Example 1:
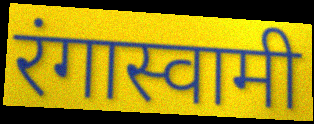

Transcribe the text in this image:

रंगास्वामी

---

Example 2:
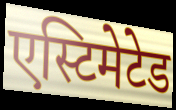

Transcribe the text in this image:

एस्टिमेटेड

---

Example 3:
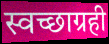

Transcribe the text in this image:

स्वच्छाग्रही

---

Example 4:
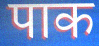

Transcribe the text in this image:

पाक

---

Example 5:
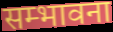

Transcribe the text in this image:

सम्भावना